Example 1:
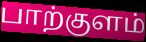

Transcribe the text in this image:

பாற்குளம்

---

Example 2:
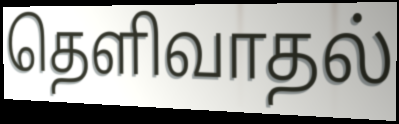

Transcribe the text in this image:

தெளிவாதல்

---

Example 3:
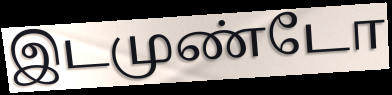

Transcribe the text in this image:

இடமுண்டோ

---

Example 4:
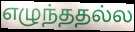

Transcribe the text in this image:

எழுந்ததல்ல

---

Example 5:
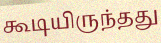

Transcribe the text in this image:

கூடியிருந்தது